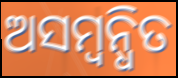
ଅସମ୍ବନ୍ଧିତ